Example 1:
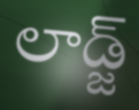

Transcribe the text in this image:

లాడ్జ్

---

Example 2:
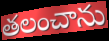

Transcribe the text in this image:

తలంచాను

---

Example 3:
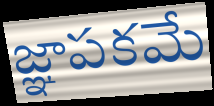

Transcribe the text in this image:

జ్ఞాపకమే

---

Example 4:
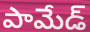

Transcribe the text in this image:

పామేడ్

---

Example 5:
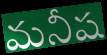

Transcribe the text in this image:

మనీష